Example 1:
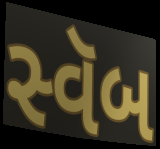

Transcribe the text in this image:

સ્વૅબ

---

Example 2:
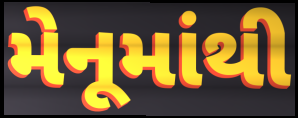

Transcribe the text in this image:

મેનૂમાંથી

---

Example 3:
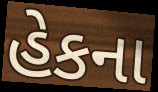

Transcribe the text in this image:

હેકના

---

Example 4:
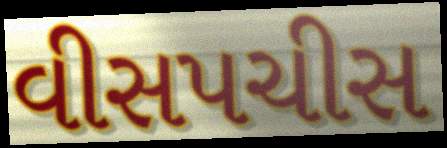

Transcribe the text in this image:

વીસપચીસ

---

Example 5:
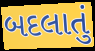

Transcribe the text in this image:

બદલાતું